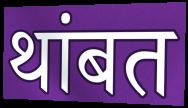
थांबत